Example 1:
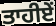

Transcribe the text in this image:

ਤਾਹੀਏਂ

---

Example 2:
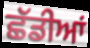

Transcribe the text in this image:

ਛੱਡੀਆਂ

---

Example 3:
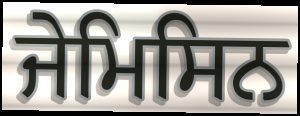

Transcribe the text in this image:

ਜੇਮਿਸਿਨ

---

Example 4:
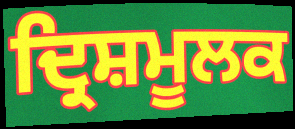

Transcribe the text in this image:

ਦ੍ਰਿਸ਼ਮੂਲਕ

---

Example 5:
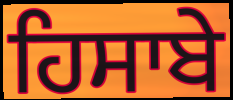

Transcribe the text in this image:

ਹਿਸਾਬੇ